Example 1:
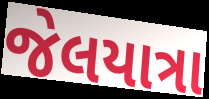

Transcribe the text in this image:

જેલયાત્રા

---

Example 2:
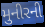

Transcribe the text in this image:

મુનીરની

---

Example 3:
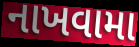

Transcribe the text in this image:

નાખવામા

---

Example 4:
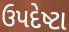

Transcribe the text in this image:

ઉપદેષ્ટા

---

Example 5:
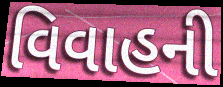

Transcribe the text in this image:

વિવાહની